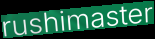
rushimaster